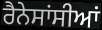
ਰੈਨੇਸਾਂਸੀਆਂ